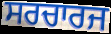
ਸਰਚਾਰਜ